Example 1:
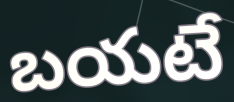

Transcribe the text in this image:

బయటే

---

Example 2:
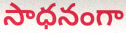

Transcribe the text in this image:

సాధనంగా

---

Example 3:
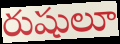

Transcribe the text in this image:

రుషులూ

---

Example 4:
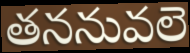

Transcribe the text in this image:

తననువలె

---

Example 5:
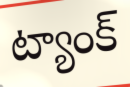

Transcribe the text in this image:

ట్యాంక్